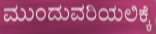
ಮುಂದುವರಿಯಲಿಕ್ಕೆ